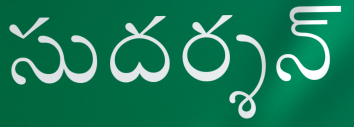
సుదర్శన్